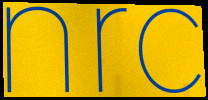
nrc